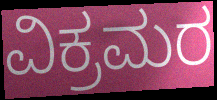
ವಿಕ್ರಮರ